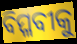
ବିପ୍ଳବୀକୁ